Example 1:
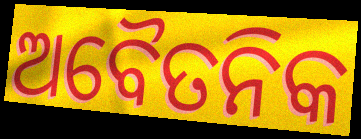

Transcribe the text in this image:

ଅବୈତନିକ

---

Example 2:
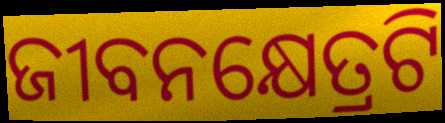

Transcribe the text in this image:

ଜୀବନକ୍ଷେତ୍ରଟି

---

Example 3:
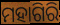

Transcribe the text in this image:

ମହାଗିରି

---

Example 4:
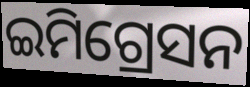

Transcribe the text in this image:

ଇମିଗ୍ରେସନ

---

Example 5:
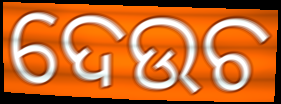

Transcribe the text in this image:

ଦେଉଚ